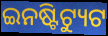
ଇନଷ୍ଟିଟ୍ୟୁଟ